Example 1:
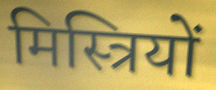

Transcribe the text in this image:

मिस्त्रियों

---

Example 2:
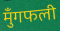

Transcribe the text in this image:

मुँगफली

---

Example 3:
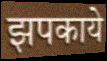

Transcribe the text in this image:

झपकाये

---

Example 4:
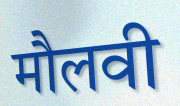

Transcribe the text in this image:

मौलवी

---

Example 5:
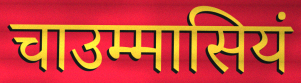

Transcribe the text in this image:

चाउम्मासियं